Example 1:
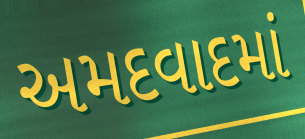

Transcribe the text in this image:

અમદવાદમાં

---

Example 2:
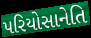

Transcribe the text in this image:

પરિયોસાનેતિ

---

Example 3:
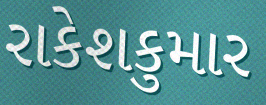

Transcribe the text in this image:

રાકેશકુમાર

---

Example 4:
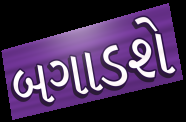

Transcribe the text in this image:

બગાડશે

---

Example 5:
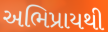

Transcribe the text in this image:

અભિપ્રાયથી